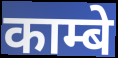
काम्बे